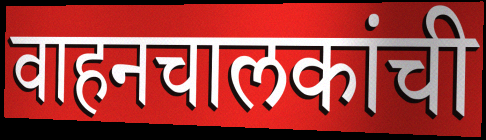
वाहनचालकांची